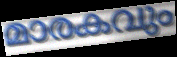
മാരകവും